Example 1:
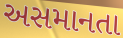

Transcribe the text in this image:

અસમાનતા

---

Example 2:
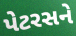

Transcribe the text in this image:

પેટરસને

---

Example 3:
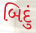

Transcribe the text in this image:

બિદું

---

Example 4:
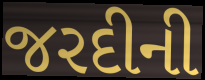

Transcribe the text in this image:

જરદીની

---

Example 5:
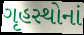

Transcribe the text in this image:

ગૃહસ્થોનાં